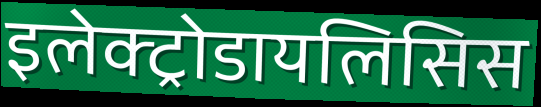
इलेक्ट्रोडायलिसिस